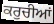
ਕਰੁਚੀਆਂ